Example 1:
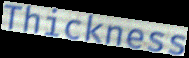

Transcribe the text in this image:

Thickness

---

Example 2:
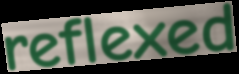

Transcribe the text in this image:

reflexed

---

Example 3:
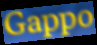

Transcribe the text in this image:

Gappo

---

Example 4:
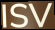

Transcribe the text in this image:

ISV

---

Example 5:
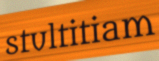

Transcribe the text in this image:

stultitiam